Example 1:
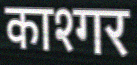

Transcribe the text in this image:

काश्गर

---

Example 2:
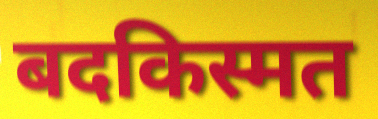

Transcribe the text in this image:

बदकिस्मत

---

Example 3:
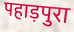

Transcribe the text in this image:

पहाड़पुरा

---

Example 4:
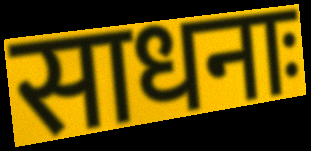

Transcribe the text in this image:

साधनाः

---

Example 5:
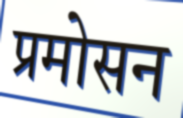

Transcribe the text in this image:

प्रमोसन